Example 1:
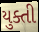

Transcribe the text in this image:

યુક્તી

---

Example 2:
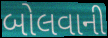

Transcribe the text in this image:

બોલવાની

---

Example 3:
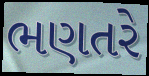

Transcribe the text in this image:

ભણતરે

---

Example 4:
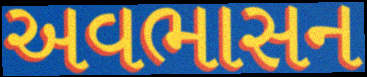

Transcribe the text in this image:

અવભાસન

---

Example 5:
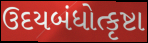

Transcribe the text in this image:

ઉદયબંધોત્કૃષ્ટા